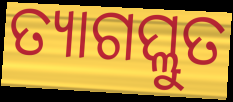
ତ୍ୟାଗପ୍ଲୁତ